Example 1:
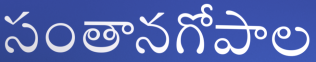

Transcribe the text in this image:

సంతానగోపాల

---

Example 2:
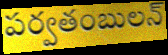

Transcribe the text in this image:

పర్వతంబులన్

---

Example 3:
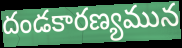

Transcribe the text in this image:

దండకారణ్యమున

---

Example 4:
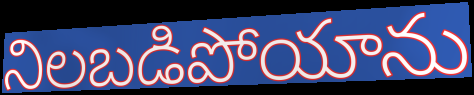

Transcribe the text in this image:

నిలబడిపోయాను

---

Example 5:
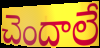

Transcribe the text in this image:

చెందాలే